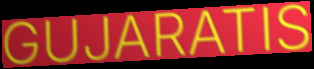
GUJARATIS